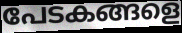
പേടകങ്ങളെ